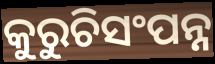
କୁରୁଚିସଂପନ୍ନ